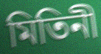
মিতিনী